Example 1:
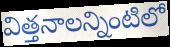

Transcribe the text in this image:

విత్తనాలన్నింటిలో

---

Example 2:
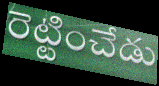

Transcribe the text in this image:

రెట్టించేడు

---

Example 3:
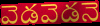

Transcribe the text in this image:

వెడవెడనె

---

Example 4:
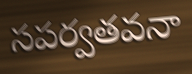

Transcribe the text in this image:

సపర్వతవనా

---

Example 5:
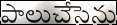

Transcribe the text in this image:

పాలుచేసెను